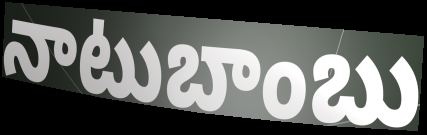
నాటుబాంబు